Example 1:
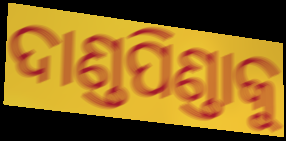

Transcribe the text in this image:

ଦାଣ୍ଡପିଣ୍ଡାକୁ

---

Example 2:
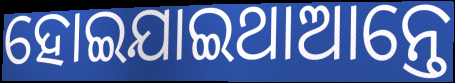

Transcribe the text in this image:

ହୋଇଯାଇଥାଆନ୍ତେ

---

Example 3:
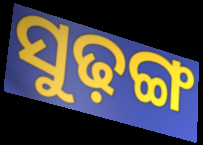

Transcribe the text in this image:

ସୁଢ଼ଙ୍ଗ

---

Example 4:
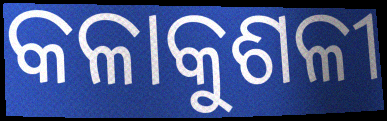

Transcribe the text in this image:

କଳାକୁଶଳୀ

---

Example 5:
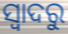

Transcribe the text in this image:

ସ୍ବାଦରୁ